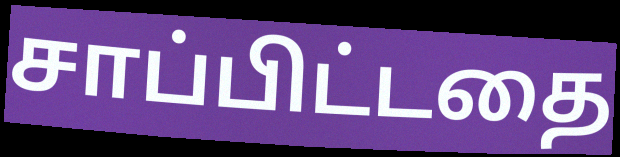
சாப்பிட்டதை